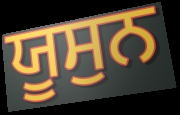
ਯੂਸੁਨ